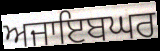
ਅਜਾਇਬਘਰ